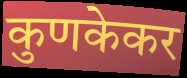
कुणकेकर